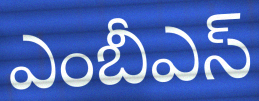
ఎంబీఎస్